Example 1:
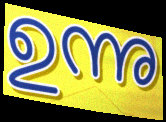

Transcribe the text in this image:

ഉന്നു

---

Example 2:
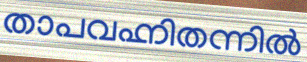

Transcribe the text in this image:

താപവഹ്നിതന്നിൽ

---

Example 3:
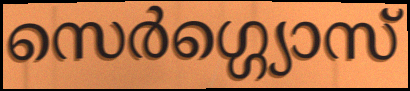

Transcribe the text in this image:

സെർഗ്ഗ്യൊസ്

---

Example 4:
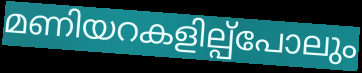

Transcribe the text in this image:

മണിയറകളില്പ്പോലും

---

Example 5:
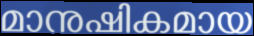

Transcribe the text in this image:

മാനുഷികമായ